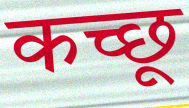
कच्छू